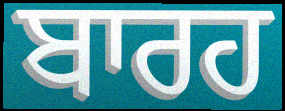
ਬਾਰਹ